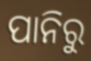
ପାନିରୁ